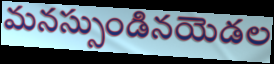
మనస్సుండినయెడల